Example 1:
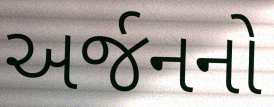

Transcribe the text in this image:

અર્જનનો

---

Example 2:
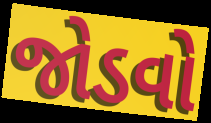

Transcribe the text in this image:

જોડવો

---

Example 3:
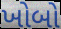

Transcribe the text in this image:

ખોબો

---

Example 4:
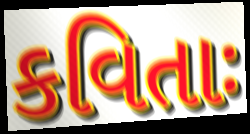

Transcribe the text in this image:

કવિતાઃ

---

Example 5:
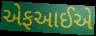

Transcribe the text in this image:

એફઆઈએ